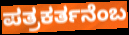
ಪತ್ರಕರ್ತನೆಂಬ